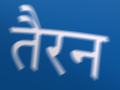
तैरन